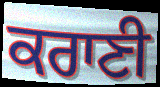
ਕਰਾਣੀ